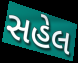
સહેલ